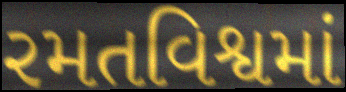
રમતવિશ્વમાં